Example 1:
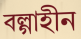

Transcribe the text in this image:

বল্গাহীন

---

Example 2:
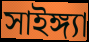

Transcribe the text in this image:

সাইঙ্গ্যা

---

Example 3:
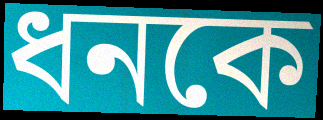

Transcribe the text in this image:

ধনকে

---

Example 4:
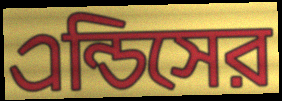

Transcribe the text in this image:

এন্ডিসের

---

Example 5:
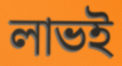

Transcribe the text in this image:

লাভই